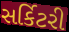
સર્કિટરી